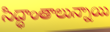
సిద్ధాంతాలున్నాయి